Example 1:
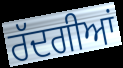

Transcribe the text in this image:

ਰੱਦਗੀਆਂ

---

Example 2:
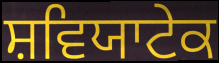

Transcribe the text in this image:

ਸ਼ਵਿਯਾਟੇਕ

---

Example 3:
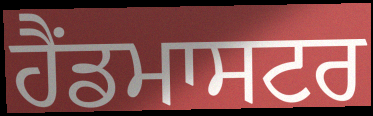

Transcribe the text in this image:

ਹੈਂਡਮਾਸਟਰ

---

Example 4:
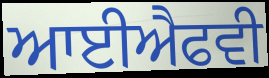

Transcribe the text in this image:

ਆਈਐਫਵੀ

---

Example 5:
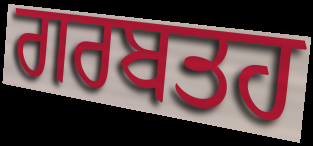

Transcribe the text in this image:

ਗਰਬਤਹ